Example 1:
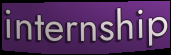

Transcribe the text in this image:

internship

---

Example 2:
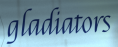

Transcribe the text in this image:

gladiators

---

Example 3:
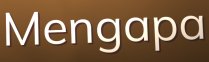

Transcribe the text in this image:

Mengapa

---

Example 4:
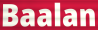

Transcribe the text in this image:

Baalan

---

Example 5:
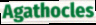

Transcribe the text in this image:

Agathocles